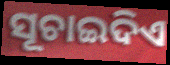
ସୂଚାଇଦିଏ